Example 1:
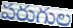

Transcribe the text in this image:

పరుగుల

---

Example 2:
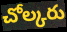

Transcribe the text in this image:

చోల్కరు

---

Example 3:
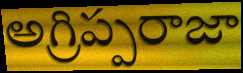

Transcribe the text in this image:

అగ్రిప్పరాజా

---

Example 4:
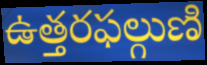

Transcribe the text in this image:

ఉత్తరఫల్గుణి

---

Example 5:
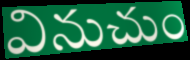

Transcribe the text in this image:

వినుచుం